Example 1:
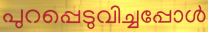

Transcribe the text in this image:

പുറപ്പെടുവിച്ചപ്പോൾ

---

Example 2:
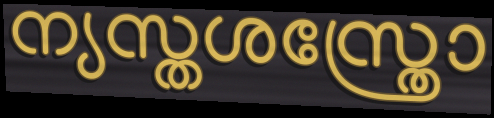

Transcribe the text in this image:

ന്യസ്തശസ്ത്രോ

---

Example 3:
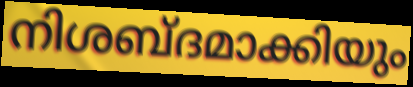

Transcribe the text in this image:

നിശബ്ദമാക്കിയും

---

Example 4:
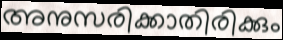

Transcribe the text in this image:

അനുസരിക്കാതിരിക്കും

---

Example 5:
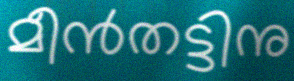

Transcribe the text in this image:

മീൻതട്ടിനു